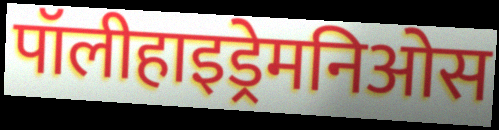
पॉलीहाइड्रेमनिओस